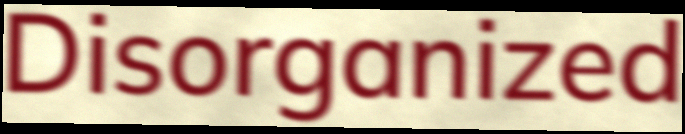
Disorganized